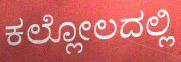
ಕಲ್ಲೋಲದಲ್ಲಿ